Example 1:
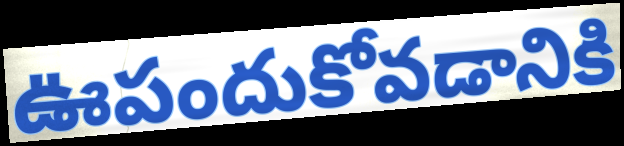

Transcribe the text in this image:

ఊపందుకోవడానికి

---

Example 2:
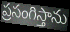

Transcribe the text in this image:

ప్రసంగిస్తాను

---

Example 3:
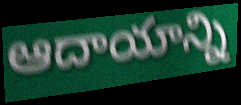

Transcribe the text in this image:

ఆదాయాన్ని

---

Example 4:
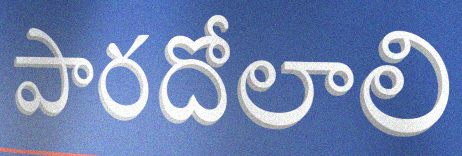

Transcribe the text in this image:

పారదోలాలి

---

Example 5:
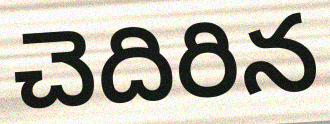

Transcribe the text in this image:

చెదిరిన